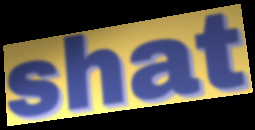
shat